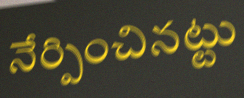
నేర్పించినట్టు